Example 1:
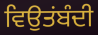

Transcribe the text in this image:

ਵਿਉਤਂਬੰਦੀ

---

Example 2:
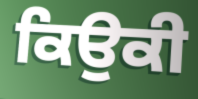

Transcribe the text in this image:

ਕਿਉਕੀ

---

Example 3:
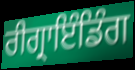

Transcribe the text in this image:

ਰੀਗ੍ਰਾਇੰਡਿੰਗ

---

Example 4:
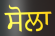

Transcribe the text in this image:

ਸੋਲਾ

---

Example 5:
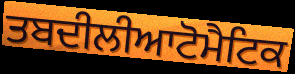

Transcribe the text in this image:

ਤਬਦੀਲੀਆਟੋਮੈਟਿਕ